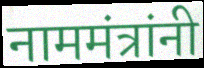
नाममंत्रांनी